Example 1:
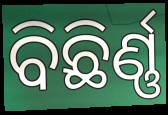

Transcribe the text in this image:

ବିଛିର୍ଣ୍ଣ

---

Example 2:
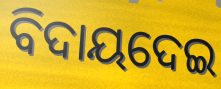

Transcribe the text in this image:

ବିଦାୟଦେଇ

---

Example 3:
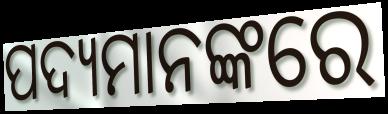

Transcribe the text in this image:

ପଦ୍ୟମାନଙ୍କରେ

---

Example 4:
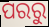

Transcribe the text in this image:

ପରରୁ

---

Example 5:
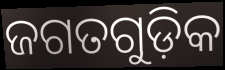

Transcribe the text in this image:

ଜଗତଗୁଡ଼ିକ